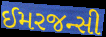
ઈમરજન્સી